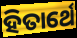
ହିତାର୍ଥେ